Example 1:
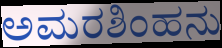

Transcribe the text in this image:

ಅಮರಶಿಂಹನು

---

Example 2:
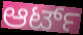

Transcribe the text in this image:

ಆರ್ಟ್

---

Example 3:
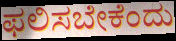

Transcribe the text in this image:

ಫಲಿಸಬೇಕೆಂದು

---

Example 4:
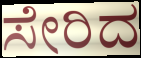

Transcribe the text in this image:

ಸೇರಿದ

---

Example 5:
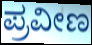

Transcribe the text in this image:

ಪ್ರವೀಣ